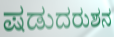
ಷಡುದರುಶನ